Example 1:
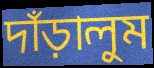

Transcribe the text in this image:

দাঁড়ালুম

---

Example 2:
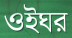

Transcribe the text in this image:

ওইঘর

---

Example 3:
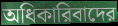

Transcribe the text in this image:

অধিকারিবাদের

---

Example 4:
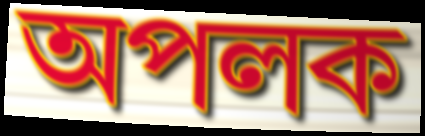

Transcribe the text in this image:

অপলক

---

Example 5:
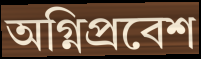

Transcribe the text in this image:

অগ্নিপ্রবেশ